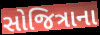
સોજિત્રાના